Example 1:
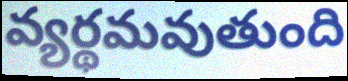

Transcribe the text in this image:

వ్యర్థమవుతుంది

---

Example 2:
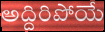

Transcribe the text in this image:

అద్దిరిపోయే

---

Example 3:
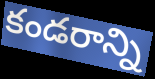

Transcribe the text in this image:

కండరాన్ని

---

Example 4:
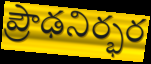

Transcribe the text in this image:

ప్రౌఢనిర్భర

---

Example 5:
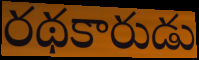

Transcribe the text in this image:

రథకారుడు